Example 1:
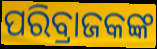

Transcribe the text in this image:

ପରିବ୍ରାଜକଙ୍କ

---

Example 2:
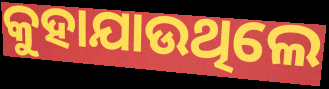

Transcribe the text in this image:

କୁହାଯାଉଥିଲେ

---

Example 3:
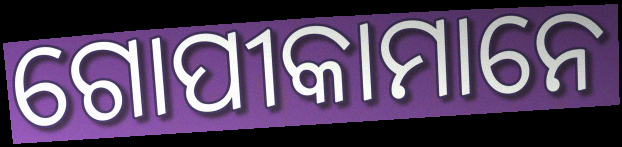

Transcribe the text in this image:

ଗୋପୀକାମାନେ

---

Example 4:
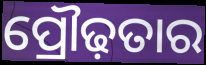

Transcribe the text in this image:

ପ୍ରୌଢ଼ତାର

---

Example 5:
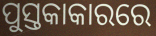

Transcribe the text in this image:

ପୁସ୍ତକାକାରରେ